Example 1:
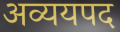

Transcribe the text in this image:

अव्ययपद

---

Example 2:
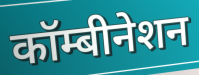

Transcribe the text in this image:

कॉम्बीनेशन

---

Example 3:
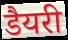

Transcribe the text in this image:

डैयरी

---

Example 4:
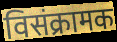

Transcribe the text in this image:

विसंक्रामक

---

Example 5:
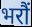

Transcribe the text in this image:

भरौं